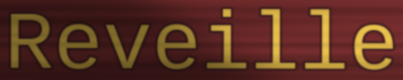
Reveille